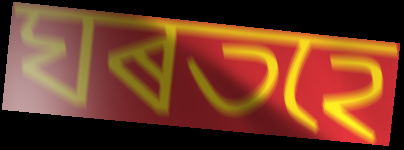
ঘৰতহে